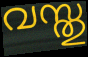
വസ്തു